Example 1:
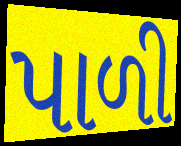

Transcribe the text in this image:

પાળી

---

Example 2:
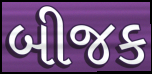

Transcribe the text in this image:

બીજક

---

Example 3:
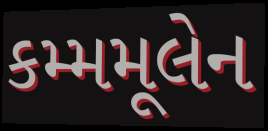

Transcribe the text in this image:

કમ્મમૂલેન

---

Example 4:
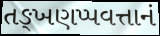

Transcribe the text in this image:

તઙ્ખણપ્પવત્તાનં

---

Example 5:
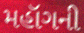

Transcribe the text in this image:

મહૉગની